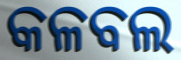
କଳବଲ